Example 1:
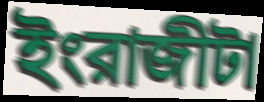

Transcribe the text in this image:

ইংরাজীটা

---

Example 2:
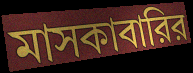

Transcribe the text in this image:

মাসকাবারির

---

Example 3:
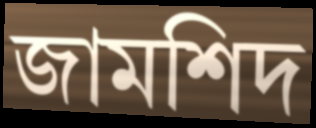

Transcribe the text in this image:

জামশিদ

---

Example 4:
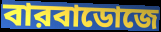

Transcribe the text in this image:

বারবাডোজে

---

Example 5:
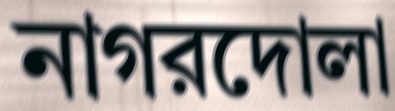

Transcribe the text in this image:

নাগরদোলা